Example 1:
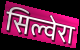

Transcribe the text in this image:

सिल्वेरा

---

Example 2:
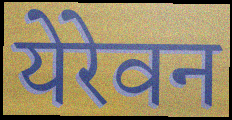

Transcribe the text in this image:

येरेवन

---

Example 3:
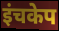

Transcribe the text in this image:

इंचकेप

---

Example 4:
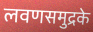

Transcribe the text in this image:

लवणसमुद्रके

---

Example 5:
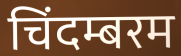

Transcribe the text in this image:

चिंदम्बरम